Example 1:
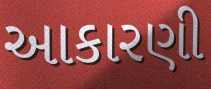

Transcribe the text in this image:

આકારણી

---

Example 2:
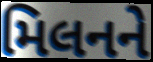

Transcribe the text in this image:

મિલનને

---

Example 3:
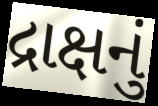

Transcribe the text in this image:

દ્રાક્ષનું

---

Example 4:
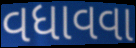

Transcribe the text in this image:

વધાવવા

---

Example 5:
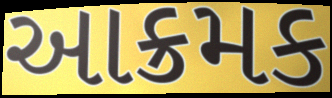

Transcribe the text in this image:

આક્રમક